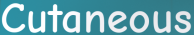
Cutaneous